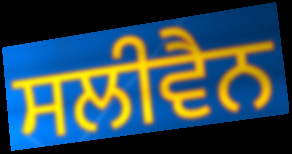
ਸਲੀਵੈਨ